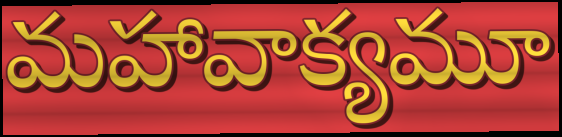
మహావాక్యమూ